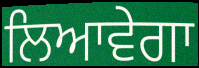
ਲਿਆਵੇਗਾ